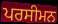
ਪਰਸੀਮਨ